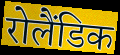
रोलैंडिक